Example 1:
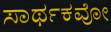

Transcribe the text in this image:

ಸಾರ್ಥಕವೋ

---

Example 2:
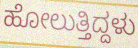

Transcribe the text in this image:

ಹೋಲುತ್ತಿದ್ದಳು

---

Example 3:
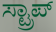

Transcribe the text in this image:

ಸ್ಟ್ರಾಪ್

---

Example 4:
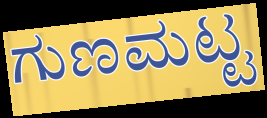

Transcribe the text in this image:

ಗುಣಮಟ್ಟ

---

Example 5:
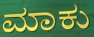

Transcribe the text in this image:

ಮಾಕು